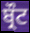
ਬ੍ਰੌਟ